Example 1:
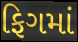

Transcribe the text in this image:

ફિગમાં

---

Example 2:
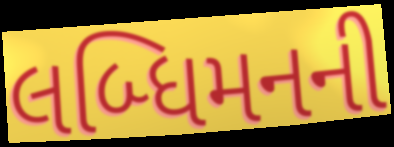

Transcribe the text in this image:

લબ્ધિમનની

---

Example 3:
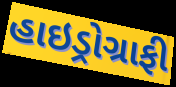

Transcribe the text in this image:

હાઇડ્રોગ્રાફી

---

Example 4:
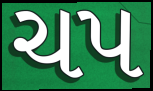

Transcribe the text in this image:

ચપ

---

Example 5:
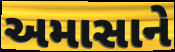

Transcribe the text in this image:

અમાસાને